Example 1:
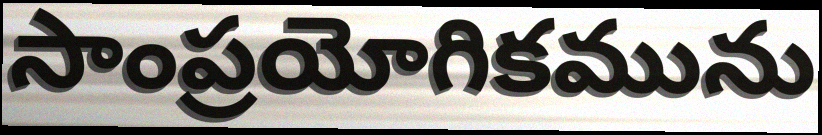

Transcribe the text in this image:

సాంప్రయోగికమును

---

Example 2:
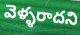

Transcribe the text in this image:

వెళ్ళరాదని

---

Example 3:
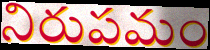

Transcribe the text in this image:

నిరుపమం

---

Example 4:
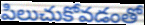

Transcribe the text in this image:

పిలుచుకోవడంతో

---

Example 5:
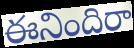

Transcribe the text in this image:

ఈనిందిరా